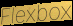
Flexbox